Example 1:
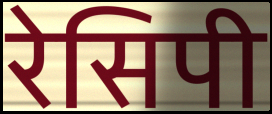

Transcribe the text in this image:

रेसिपी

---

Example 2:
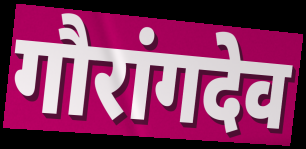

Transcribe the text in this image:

गौरांगदेव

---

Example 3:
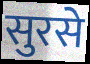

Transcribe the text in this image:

सुरसे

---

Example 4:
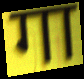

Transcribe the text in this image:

गा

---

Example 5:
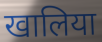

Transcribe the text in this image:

खालिया